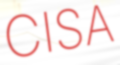
CISA